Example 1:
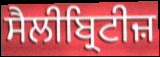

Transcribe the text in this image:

ਸੈਲੀਬ੍ਰਿਟੀਜ਼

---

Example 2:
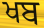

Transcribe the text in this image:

ਖਬ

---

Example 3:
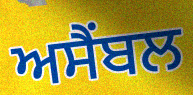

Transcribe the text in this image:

ਅਸੈਂਬਲ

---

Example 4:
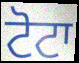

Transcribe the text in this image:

ਟੋਟਾ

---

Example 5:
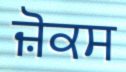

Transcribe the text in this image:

ਜ਼ੋਕਸ